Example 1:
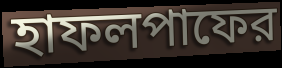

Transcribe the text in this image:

হাফলপাফের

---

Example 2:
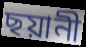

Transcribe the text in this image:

ছয়ানী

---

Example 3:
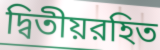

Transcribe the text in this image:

দ্বিতীয়রহিত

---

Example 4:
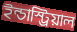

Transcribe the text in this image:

ইন্ডাস্ট্রিয়াল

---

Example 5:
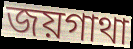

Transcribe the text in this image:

জয়গাথা